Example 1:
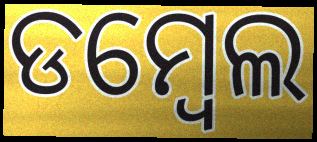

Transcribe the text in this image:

ଡମ୍ୱେଲ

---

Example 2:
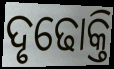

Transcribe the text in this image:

ଦୃଢୋକ୍ତି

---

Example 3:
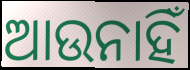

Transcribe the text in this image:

ଆଉନାହିଁ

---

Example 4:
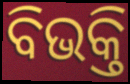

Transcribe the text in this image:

ବିଭକ୍ତି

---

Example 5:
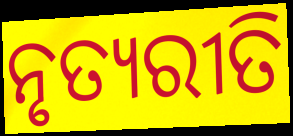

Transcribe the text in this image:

ନୃତ୍ୟରୀତି